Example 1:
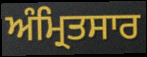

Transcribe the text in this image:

ਅੰਮ੍ਰਿਤਸਾਰ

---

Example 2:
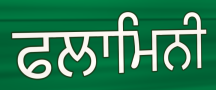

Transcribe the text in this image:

ਫਲਾਮਿਨੀ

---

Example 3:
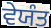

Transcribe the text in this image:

ਵੇਯੰਤ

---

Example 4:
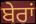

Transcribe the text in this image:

ਬੇਰਾਂ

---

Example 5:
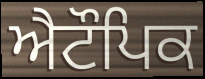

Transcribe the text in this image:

ਐਟੌਪਿਕ